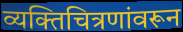
व्यक्तिचित्रणांवरून